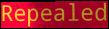
Repealed